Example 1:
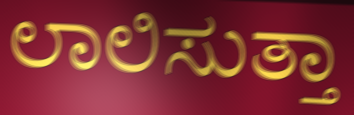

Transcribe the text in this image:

ಲಾಲಿಸುತ್ತಾ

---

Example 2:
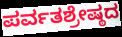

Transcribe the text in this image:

ಪರ್ವತಶ್ರೇಷ್ಠದ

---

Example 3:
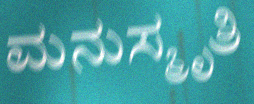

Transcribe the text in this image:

ಮನುಸ್ಮೃತಿ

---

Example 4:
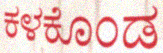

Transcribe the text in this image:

ಕಳಕೊಂಡ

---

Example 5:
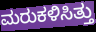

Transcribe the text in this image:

ಮರುಕಳಿಸಿತ್ತು